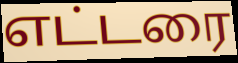
எட்டரை